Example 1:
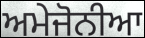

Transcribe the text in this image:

ਅਮੇਜੋਨੀਆ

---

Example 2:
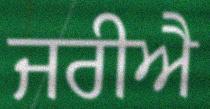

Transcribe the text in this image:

ਜਰੀਐ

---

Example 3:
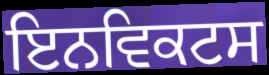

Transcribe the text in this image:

ਇਨਵਿਕਟਸ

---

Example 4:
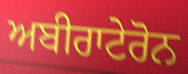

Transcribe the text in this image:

ਅਬੀਰਾਟੇਰੋਨ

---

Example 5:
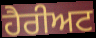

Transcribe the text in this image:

ਹੈਰੀਅਟ